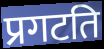
प्रगटति